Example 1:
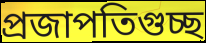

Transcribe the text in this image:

প্রজাপতিগুচ্ছ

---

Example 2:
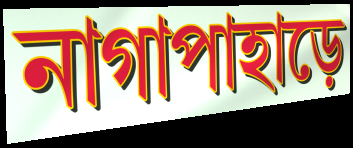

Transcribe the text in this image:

নাগাপাহাড়ে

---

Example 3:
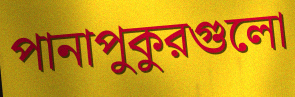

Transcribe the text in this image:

পানাপুকুরগুলো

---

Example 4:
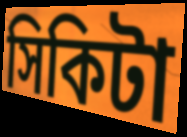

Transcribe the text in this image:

সিকিটা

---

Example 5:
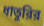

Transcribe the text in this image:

ধাতুরির